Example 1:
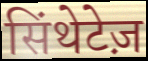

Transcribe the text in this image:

सिंथेटेज़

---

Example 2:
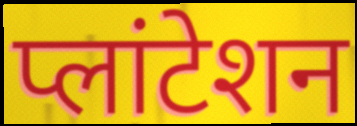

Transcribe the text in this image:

प्लांटेशन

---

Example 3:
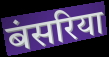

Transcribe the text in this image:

बंसरिया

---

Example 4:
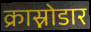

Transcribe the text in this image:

क्रास्नोडार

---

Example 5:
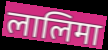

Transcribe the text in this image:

लालिमा